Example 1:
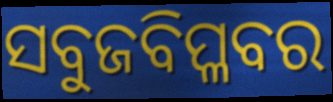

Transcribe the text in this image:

ସବୁଜବିପ୍ଳବର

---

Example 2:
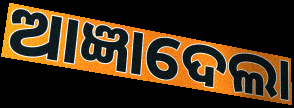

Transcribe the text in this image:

ଆଜ୍ଞାଦେଲା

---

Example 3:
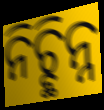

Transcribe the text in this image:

ନିଚ୍ଛିନ୍ନ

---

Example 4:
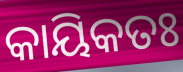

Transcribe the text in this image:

କାୟିକତଃ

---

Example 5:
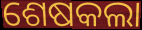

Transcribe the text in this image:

ଶେଷକଲା